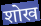
शोख